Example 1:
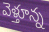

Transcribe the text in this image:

వెళ్తూన్న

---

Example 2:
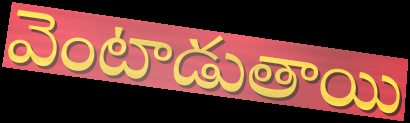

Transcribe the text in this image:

వెంటాడుతాయి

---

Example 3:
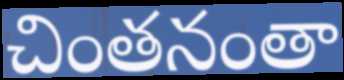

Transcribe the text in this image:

చింతనంతా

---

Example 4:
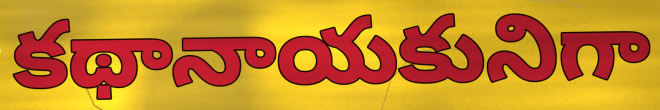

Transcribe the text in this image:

కథానాయకునిగా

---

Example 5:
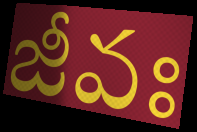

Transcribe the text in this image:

జీవః